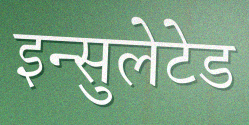
इन्सुलेटेड